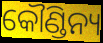
କୌଣ୍ଡିନ୍ୟ